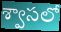
శ్వాసలో